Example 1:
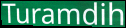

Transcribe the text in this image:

Turamdih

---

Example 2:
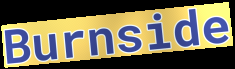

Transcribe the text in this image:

Burnside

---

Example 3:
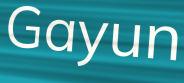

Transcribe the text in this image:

Gayun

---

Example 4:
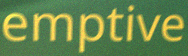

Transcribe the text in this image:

emptive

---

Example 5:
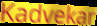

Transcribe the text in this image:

Kadvekar